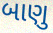
બાણુ